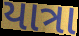
યાત્રા